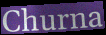
Churna